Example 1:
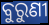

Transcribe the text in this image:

ବୁରୁଣୀ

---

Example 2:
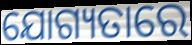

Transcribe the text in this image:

ଯୋଗ୍ୟତାରେ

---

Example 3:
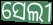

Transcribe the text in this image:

ସେଲୀ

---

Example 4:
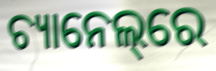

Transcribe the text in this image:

ଚ୍ୟାନେଲ୍‌ରେ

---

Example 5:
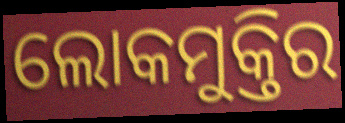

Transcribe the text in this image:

ଲୋକମୁକ୍ତିର